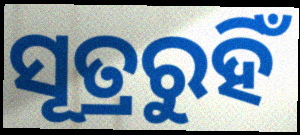
ସୂତ୍ରରୁହିଁ